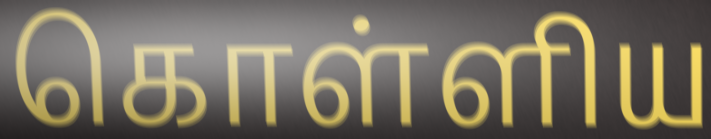
கொள்ளிய